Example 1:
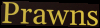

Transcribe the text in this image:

Prawns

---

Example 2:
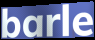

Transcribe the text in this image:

barle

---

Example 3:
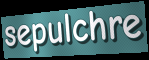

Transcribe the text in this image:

sepulchre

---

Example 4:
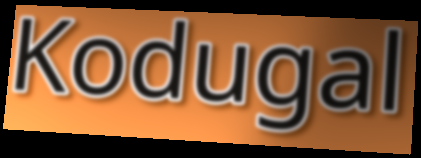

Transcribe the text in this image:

Kodugal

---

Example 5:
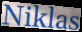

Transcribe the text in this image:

Niklas